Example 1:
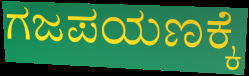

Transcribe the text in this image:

ಗಜಪಯಣಕ್ಕೆ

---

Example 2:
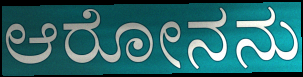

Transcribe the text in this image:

ಆರೋನನು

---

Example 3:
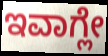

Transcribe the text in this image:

ಇವಾಗ್ಲೇ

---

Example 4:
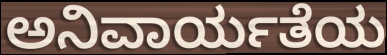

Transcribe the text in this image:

ಅನಿವಾರ್ಯತೆಯ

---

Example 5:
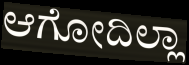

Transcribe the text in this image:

ಆಗೋದಿಲ್ಲಾ